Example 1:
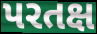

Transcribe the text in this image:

પરતક્ષ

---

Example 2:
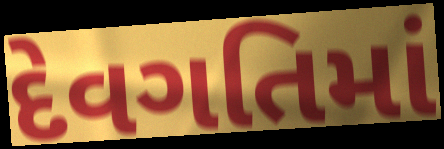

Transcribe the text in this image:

દેવગતિમાં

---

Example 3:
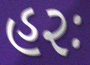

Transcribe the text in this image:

હરઃ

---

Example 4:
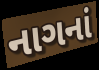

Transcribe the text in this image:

નાગનાં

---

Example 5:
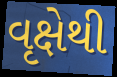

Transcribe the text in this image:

વૃક્ષેથી